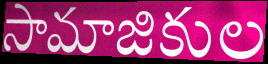
సామాజికుల